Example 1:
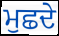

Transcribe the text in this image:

ਮੁਛਦੇ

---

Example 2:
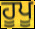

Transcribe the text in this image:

ਹੂਪੂ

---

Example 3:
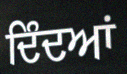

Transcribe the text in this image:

ਦਿੰਦਆਂ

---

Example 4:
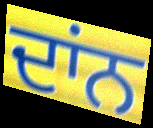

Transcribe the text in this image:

ਦਾਂਨ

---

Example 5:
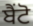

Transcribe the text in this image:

ਬੈਂਟੋ